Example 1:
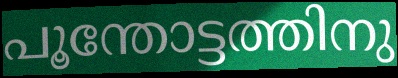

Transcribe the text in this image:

പൂന്തോട്ടത്തിനു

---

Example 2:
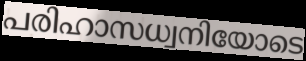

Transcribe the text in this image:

പരിഹാസധ്വനിയോടെ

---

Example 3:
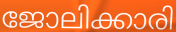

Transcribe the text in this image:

ജോലിക്കാരി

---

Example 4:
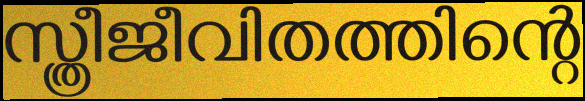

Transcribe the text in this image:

സ്ത്രീജീവിതത്തിന്റെ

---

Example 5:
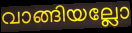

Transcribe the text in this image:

വാങ്ങിയല്ലോ